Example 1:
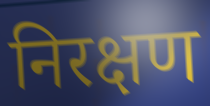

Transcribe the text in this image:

निरक्षण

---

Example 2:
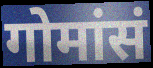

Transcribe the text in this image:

गोमांसं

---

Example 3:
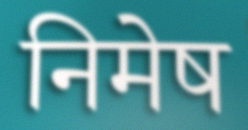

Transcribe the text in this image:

निमेष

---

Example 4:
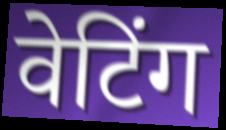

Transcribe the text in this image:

वेटिंग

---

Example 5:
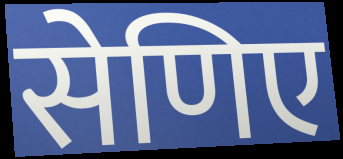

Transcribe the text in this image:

सेणिए